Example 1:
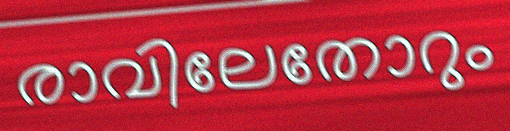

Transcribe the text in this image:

രാവിലേതോറും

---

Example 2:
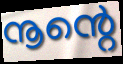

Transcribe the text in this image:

നൂന്റെ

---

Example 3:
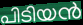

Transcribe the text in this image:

പിടിയൻ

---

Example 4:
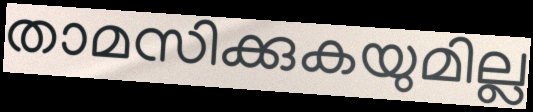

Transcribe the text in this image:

താമസിക്കുകയുമില്ല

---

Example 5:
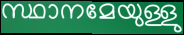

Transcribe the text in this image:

സ്ഥാനമേയുള്ളു